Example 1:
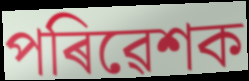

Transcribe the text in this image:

পৰিৱেশক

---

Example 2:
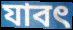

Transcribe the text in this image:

যাবৎ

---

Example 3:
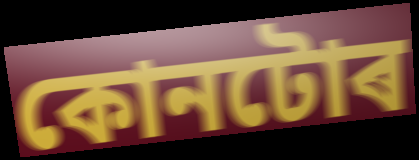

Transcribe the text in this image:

কোনটোৰ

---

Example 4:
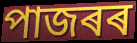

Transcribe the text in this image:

পাজৰৰ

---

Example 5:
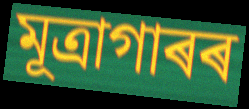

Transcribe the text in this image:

মূত্ৰাগাৰৰ